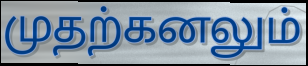
முதற்கனலும்